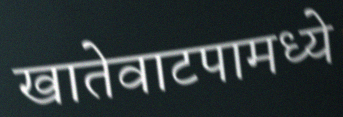
खातेवाटपामध्ये